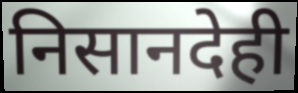
निसानदेही